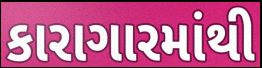
કારાગારમાંથી